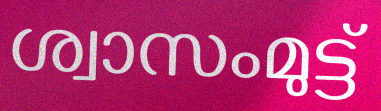
ശ്വാസംമുട്ട്